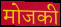
मोजकी